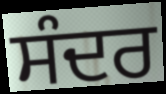
ਸੰਦਰ